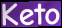
Keto